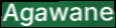
Agawane